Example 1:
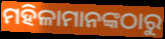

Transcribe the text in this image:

ମହିଳାମାନଙ୍କଠାରୁ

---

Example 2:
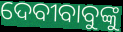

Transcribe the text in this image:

ଦେବୀବାବୁଙ୍କୁ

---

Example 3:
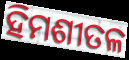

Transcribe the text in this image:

ହିମଶୀତଳ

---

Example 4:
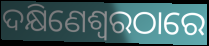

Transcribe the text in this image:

ଦକ୍ଷିଣେଶ୍ୱରଠାରେ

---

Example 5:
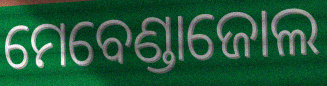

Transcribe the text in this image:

ମେବେଣ୍ଡାଜୋଲ